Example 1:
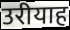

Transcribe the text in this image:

उरीयाह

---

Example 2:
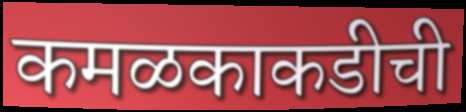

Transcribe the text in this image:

कमळकाकडीची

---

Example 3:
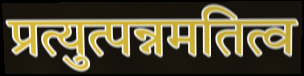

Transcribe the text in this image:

प्रत्युत्पन्नमतित्व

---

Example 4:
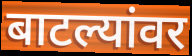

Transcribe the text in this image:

बाटल्यांवर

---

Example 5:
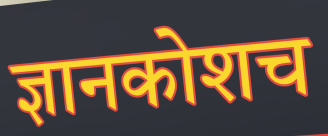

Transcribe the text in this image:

ज्ञानकोशच